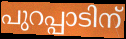
പുറപ്പാടിന്